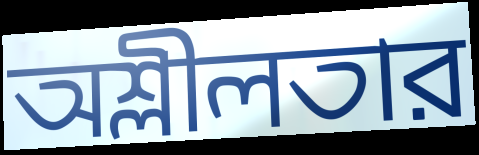
অশ্লীলতার